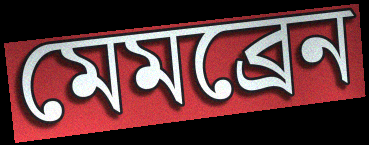
মেমব্ৰেন